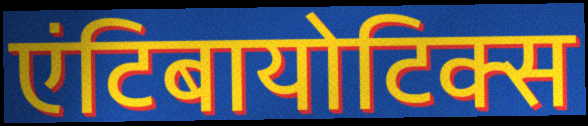
एंटिबायोटिक्स